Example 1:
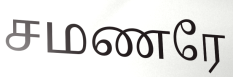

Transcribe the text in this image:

சமணரே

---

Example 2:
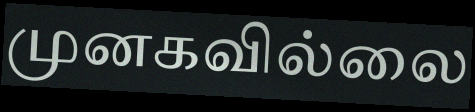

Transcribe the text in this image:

முனகவில்லை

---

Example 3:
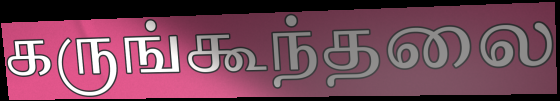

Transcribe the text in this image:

கருங்கூந்தலை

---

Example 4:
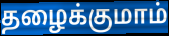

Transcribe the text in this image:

தழைக்குமாம்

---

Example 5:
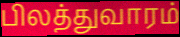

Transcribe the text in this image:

பிலத்துவாரம்